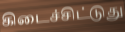
கிடைச்சிட்டுது